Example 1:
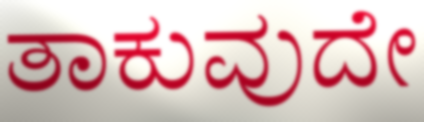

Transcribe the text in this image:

ತಾಕುವುದೇ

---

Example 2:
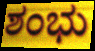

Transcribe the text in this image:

ಶಂಭು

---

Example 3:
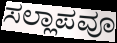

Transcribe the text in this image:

ಸಲ್ಲಾಪವೂ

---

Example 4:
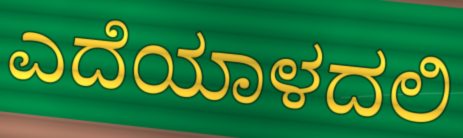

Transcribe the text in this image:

ಎದೆಯಾಳದಲಿ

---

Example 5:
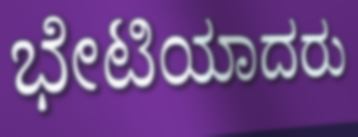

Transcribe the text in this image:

ಭೇಟಿಯಾದರು